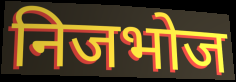
निजभोज